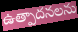
ఉత్పాదనలను